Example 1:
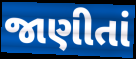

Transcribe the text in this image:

જાણીતાં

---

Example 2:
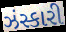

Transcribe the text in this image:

ઝંસ્કારી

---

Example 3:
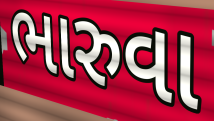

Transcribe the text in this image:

ભારુવા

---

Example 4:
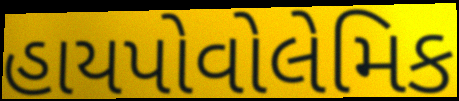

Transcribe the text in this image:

હાયપોવોલેમિક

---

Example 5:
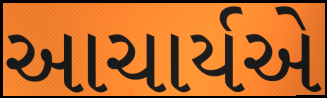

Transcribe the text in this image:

આચાર્યએ